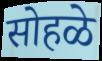
सोहळे